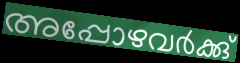
അപ്പോഴവർക്കു്